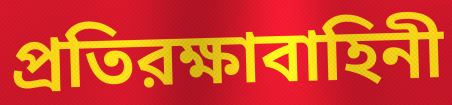
প্রতিরক্ষাবাহিনী